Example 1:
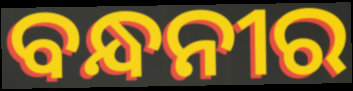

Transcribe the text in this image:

ବନ୍ଧନୀର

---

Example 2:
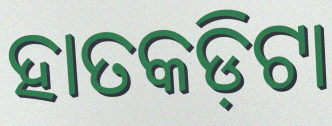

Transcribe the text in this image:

ହାତକଡ଼ିଟା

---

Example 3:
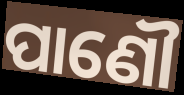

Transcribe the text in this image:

ପାଣୌ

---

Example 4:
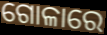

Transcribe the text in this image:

ଗୋଳାରେ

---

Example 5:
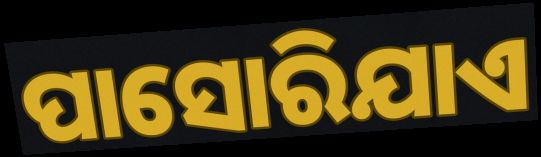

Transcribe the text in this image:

ପାସୋରିଯାଏ